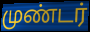
முண்டர்